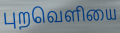
புறவெளியை